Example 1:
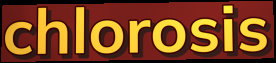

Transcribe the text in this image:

chlorosis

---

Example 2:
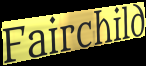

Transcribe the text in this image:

Fairchild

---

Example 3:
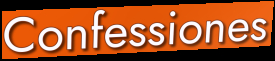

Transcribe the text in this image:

Confessiones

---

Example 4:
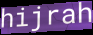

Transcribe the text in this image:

hijrah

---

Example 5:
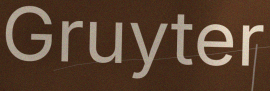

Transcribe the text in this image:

Gruyter